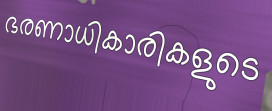
ഭരണാധികാരികളുടെ